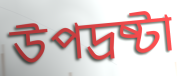
উপদ্রষ্টা